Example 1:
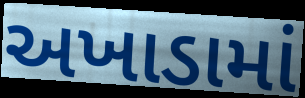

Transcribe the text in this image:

અખાડામાં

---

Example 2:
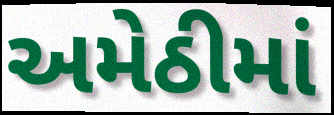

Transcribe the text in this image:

અમેઠીમાં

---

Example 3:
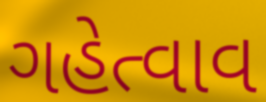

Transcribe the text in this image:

ગહેત્વાવ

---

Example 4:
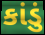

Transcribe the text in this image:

કાંડું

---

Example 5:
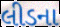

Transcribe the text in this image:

લીડના